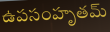
ఉపసంహృతమ్